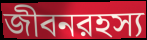
জীবনরহস্য